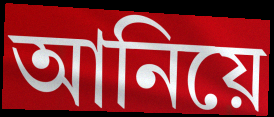
আনিয়ে